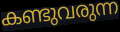
കണ്ടുവരുന്ന